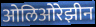
ओलिओरेझीन